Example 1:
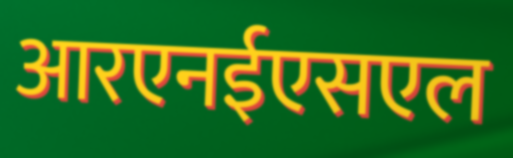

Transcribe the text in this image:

आरएनईएसएल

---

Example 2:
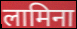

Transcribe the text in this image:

लामिना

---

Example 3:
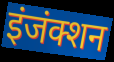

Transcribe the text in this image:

इंजंक्शन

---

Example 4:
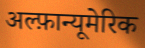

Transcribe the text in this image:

अल्फ़ान्यूमेरिक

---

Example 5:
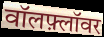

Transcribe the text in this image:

वॉलफ़्लॉवर